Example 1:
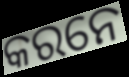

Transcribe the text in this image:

କରନେ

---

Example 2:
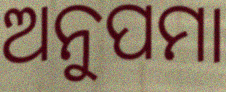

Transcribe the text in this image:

ଅନୁପମା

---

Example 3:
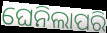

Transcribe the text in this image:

ଘେନିଲାପରି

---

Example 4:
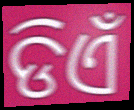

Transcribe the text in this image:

ଡିଏଁ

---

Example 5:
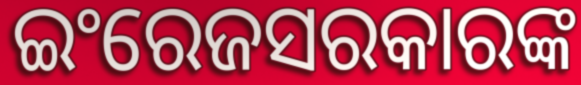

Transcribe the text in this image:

ଇଂରେଜସରକାରଙ୍କ